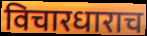
विचारधाराच